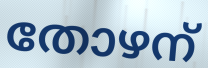
തോഴന്